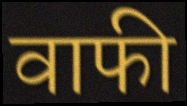
वाफी